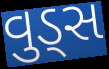
વુડ્સ